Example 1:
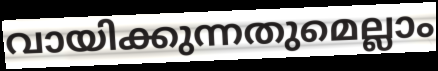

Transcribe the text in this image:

വായിക്കുന്നതുമെല്ലാം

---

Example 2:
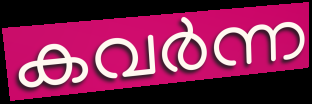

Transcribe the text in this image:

കവർന്ന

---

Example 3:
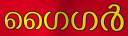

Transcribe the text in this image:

ഗൈഗർ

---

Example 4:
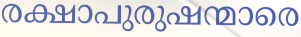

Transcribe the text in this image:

രക്ഷാപുരുഷന്മാരെ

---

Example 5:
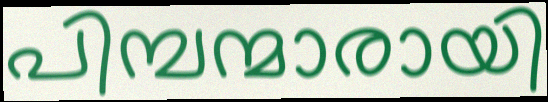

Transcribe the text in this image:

പിമ്പന്മാരായി